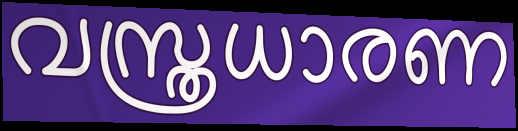
വസ്ത്രധാരണ